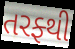
તરફ્થી